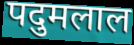
पदुमलाल